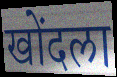
खोंदला